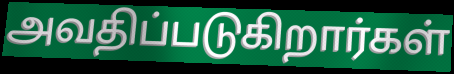
அவதிப்படுகிறார்கள்